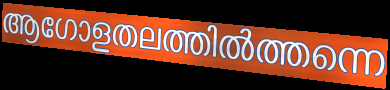
ആഗോളതലത്തിൽത്തന്നെ